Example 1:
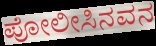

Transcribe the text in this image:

ಪೋಲೀಸಿನವನ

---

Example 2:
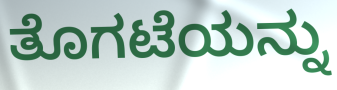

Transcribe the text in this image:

ತೊಗಟೆಯನ್ನು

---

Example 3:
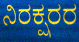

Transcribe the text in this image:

ನಿರಕ್ಷರರ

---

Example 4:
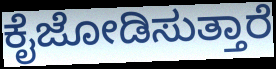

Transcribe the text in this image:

ಕೈಜೋಡಿಸುತ್ತಾರೆ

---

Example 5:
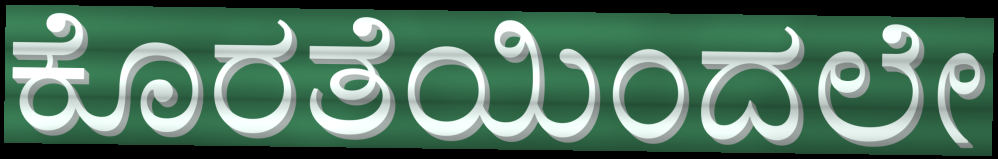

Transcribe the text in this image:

ಕೊರತೆಯಿಂದಲೇ